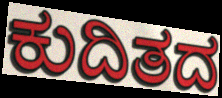
ಕುದಿತದ